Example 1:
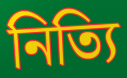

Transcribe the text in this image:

নিত্যি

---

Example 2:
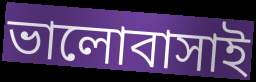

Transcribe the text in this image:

ভালোবাসাই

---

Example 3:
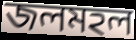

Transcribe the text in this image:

জলমহল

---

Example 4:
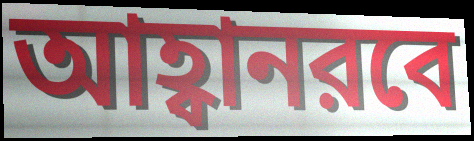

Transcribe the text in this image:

আহ্বানরবে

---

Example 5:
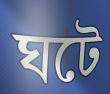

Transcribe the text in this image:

ঘটে